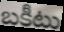
బకీటు